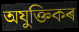
অযুক্তিকৰ